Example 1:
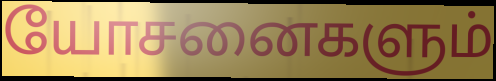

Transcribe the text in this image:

யோசனைகளும்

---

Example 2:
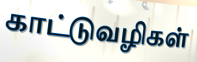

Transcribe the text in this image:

காட்டுவழிகள்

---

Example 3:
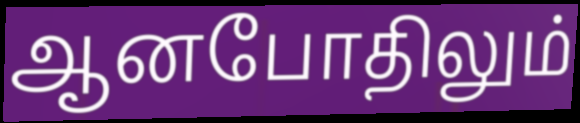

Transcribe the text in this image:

ஆனபோதிலும்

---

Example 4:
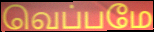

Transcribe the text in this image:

வெப்பமே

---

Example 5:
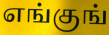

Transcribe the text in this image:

எங்குங்